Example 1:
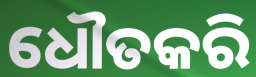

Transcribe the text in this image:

ଧୌତକରି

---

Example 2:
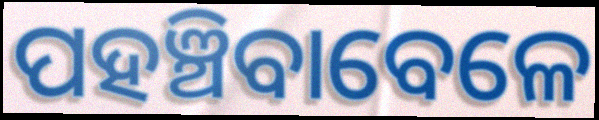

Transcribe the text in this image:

ପହଞ୍ଚିବାବେଳେ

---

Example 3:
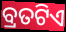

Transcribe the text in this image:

ବ୍ରତଟିଏ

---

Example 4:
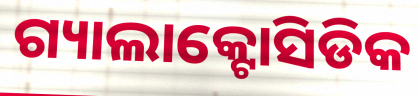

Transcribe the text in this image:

ଗ୍ୟାଲାକ୍ଟୋସିଡିକ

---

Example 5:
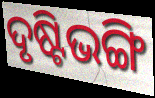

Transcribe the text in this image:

ଦୃଷ୍ଟିଭଙ୍ଗି